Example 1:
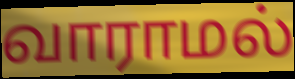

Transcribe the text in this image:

வாராமல்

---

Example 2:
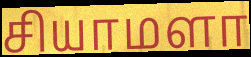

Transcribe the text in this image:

சியாமளா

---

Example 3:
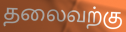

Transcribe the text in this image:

தலைவற்கு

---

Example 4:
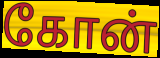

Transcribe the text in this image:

கோன்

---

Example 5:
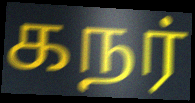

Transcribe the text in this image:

கநர்